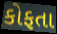
કોફતા